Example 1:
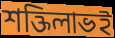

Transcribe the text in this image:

শক্তিলাভই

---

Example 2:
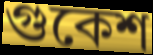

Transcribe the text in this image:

গুকেশ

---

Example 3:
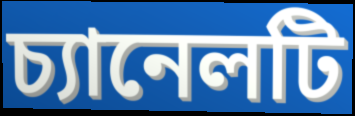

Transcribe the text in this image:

চ্যানেলটি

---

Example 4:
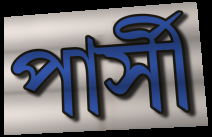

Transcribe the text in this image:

পার্সী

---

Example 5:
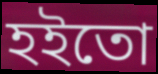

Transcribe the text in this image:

হইতো